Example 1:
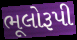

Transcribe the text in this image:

ભૂલોરૂપી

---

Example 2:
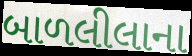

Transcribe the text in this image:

બાળલીલાના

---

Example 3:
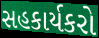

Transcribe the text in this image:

સહકાર્યકરો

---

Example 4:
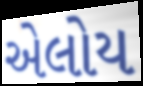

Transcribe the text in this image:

એલોય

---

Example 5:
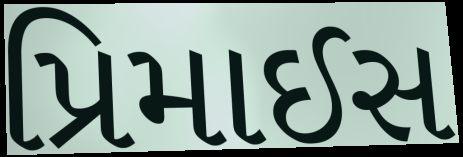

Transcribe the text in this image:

પ્રિમાઈસ